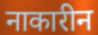
नाकारीन